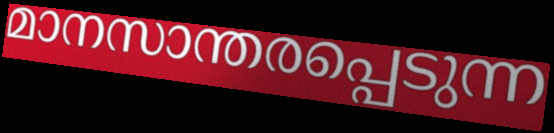
മാനസാന്തരപ്പെടുന്ന